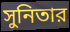
সুনিতার